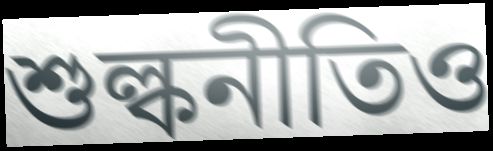
শুল্কনীতিও